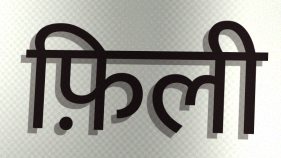
फ़िली